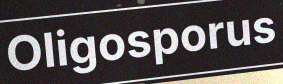
Oligosporus